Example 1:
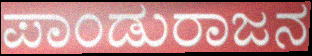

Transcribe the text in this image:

ಪಾಂಡುರಾಜನ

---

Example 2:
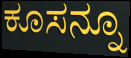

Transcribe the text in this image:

ಕೂಸನ್ನೂ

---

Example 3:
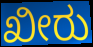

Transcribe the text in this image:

ಖೀರು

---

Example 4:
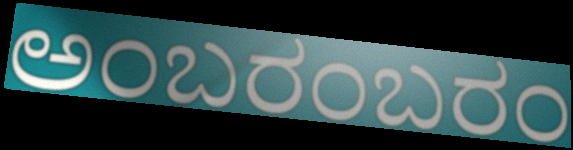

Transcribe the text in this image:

ಅಂಬರಂಬರಂ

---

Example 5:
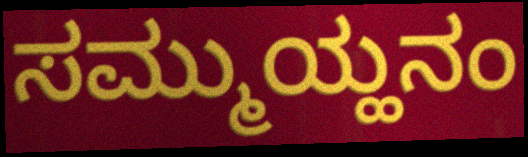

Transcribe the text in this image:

ಸಮ್ಮುಯ್ಹನಂ